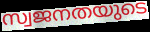
സ്വജനതയുടെ